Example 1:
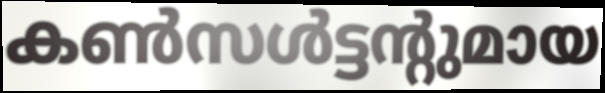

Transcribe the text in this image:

കൺസൾട്ടന്റുമായ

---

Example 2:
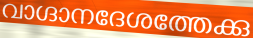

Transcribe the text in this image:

വാഗ്ദാനദേശത്തേക്കു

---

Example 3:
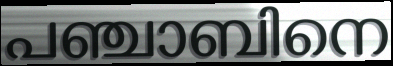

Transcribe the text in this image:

പഞ്ചാബിനെ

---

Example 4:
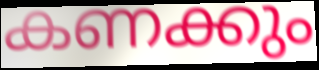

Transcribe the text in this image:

കണക്കും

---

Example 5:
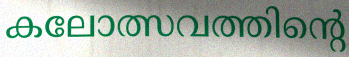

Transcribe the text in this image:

കലോത്സവത്തിന്റെ